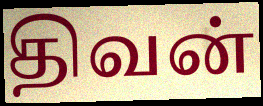
திவன்